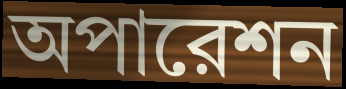
অপারেশন